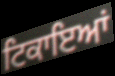
ਟਿਕਾਇਆਂ